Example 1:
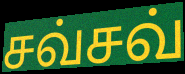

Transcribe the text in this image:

சவ்சவ்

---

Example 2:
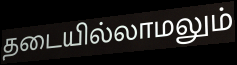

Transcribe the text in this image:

தடையில்லாமலும்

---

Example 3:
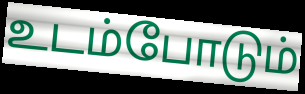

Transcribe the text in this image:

உடம்போடும்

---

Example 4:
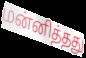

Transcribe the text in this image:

மன்னித்தது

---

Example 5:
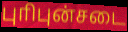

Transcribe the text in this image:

புரிபுன்சடை